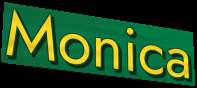
Monica